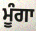
ਮੂੰਗਾ